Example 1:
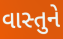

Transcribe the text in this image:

વાસ્તુને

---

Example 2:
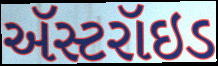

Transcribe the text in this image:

ઍસ્ટરૉઇડ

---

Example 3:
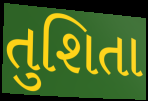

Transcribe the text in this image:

તુશિતા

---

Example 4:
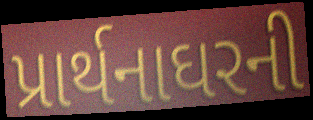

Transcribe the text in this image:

પ્રાર્થનાઘરની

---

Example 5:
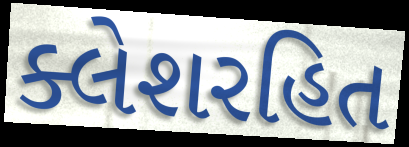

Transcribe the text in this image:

ક્લેશરહિત